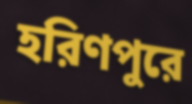
হরিণপুরে